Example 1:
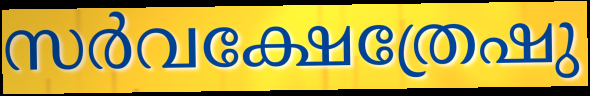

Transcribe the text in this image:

സർവക്ഷേത്രേഷു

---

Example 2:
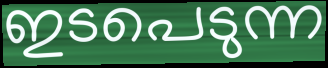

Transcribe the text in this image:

ഇടപെടുന്ന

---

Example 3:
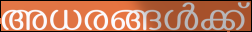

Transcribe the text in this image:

അധരങ്ങൾക്ക്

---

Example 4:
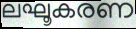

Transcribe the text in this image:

ലഘൂകരണ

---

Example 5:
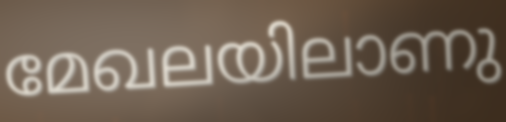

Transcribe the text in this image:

മേഖലയിലാണു